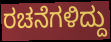
ರಚನೆಗಳಿದ್ದು